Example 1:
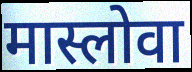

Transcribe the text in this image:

मास्लोवा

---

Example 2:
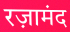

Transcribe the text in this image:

रज़ामंद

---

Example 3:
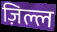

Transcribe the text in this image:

ज़िल्ल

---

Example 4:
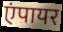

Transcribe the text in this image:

एंपायर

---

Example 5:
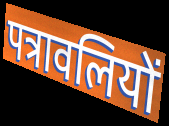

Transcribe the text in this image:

पत्रावलियों